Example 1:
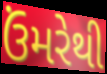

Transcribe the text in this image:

ઉંમરેથી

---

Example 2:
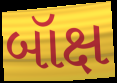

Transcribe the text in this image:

બૉક્ષ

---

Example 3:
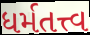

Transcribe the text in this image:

ધર્મતત્ત્વ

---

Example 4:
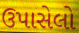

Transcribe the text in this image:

ઉપાસેલો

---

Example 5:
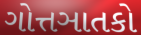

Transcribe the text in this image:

ગોત્તઞાતકો